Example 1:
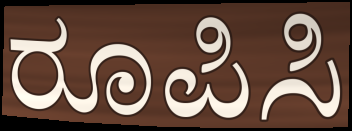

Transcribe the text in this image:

ರೂಪಿಸಿ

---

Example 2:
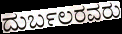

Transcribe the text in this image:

ದುರ್ಬಲರವರು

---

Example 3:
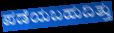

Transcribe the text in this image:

ಪಡೆಯಬಹುದಿತ್ತು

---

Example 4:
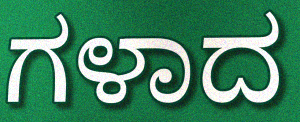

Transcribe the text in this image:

ಗಳಾದ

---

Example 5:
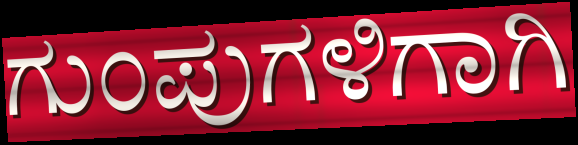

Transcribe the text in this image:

ಗುಂಪುಗಳಿಗಾಗಿ